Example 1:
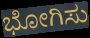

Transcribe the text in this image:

ಭೋಗಿಸು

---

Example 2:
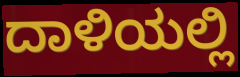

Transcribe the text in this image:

ದಾಳಿಯಲ್ಲಿ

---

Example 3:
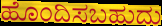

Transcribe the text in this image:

ಹೊಂದಿಸಬಹುದು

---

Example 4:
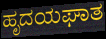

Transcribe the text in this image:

ಹೃದಯಘಾತ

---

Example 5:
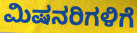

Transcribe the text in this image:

ಮಿಷನರಿಗಳಿಗೆ